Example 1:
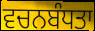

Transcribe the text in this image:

ਵਚਨਬੰਧਤਾ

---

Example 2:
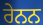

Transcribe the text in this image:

ਰੇਨਨ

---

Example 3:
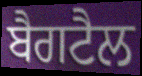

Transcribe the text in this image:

ਬੈਗਟੈਲ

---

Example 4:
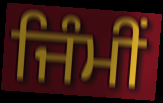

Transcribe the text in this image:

ਜਿੰਮੀਂ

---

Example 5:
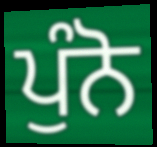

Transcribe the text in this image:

ਪੁੰਨੋ